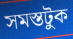
সমস্তটুক